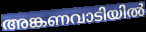
അങ്കണവാടിയിൽ